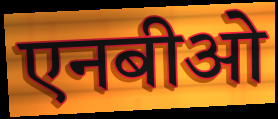
एनबीओ